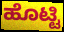
ಹೊಟ್ಟಿ